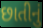
છાતીનું